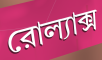
রোল্যাক্স